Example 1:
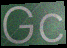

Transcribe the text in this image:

Gc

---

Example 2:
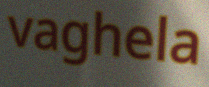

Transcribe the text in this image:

vaghela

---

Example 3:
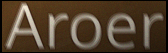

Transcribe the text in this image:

Aroer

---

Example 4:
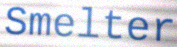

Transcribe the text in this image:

Smelter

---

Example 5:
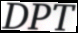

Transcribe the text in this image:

DPT